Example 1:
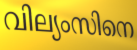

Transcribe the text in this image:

വില്യംസിനെ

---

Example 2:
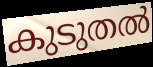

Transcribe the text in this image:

കുടുതൽ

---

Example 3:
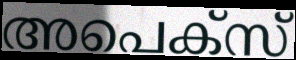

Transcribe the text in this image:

അപെക്സ്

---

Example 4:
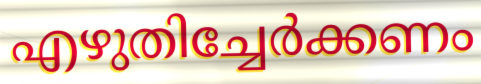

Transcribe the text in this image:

എഴുതിച്ചേർക്കണം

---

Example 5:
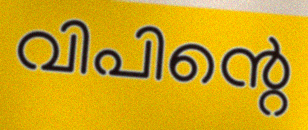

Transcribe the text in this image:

വിപിന്റെ